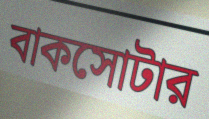
বাকসোটার